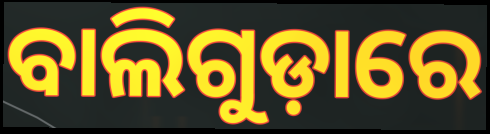
ବାଲିଗୁଡ଼ାରେ